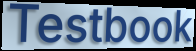
Testbook